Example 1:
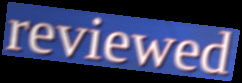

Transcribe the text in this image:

reviewed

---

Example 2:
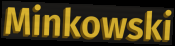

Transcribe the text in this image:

Minkowski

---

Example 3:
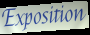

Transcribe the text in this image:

Exposition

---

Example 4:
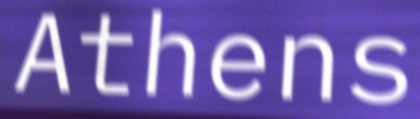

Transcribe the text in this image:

Athens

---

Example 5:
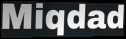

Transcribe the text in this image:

Miqdad